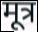
मूत्र